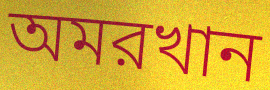
অমরখান